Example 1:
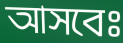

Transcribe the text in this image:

আসবেঃ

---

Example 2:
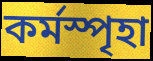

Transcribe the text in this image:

কর্মস্পৃহা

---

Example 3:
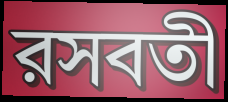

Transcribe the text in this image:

রসবতী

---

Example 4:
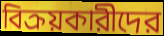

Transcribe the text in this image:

বিক্রয়কারীদের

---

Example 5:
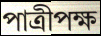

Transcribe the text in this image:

পাত্রীপক্ষ